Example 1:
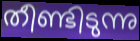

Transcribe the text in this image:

തീണ്ടിടുന്നു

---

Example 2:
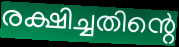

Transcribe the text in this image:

രക്ഷിച്ചതിന്റെ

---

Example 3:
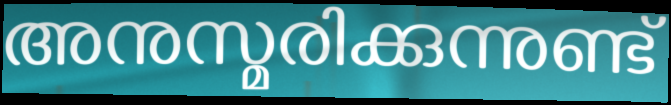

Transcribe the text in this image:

അനുസ്മരിക്കുന്നുണ്ട്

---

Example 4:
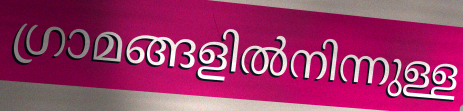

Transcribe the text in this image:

ഗ്രാമങ്ങളിൽനിന്നുള്ള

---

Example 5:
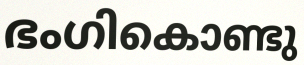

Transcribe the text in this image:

ഭംഗികൊണ്ടു